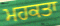
ਮਹਕਤਾ